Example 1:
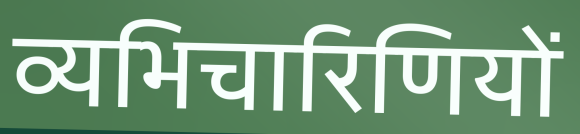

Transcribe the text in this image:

व्यभिचारिणियों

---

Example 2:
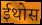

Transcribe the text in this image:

ईथोस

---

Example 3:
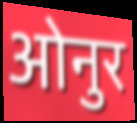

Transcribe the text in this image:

ओनुर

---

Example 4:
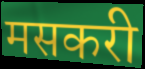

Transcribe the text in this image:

मसकरी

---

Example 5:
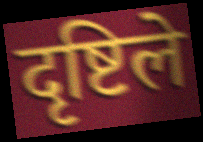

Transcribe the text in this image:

दृष्टिले